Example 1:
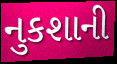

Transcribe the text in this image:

નુકશાની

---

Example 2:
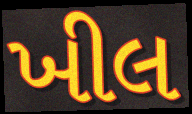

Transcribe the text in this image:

ખીલ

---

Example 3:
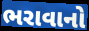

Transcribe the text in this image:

ભરાવાનો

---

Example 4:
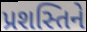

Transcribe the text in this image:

પ્રશસ્તિને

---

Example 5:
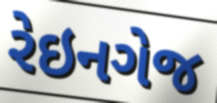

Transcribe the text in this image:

રેઇનગેજ